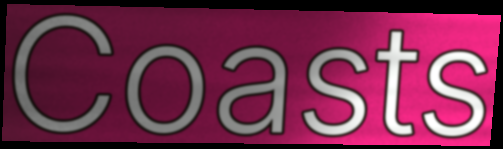
Coasts